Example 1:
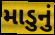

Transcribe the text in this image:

માડુનું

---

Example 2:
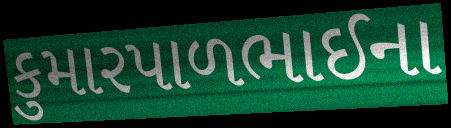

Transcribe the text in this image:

કુમારપાળભાઈના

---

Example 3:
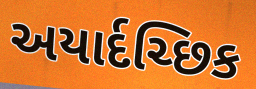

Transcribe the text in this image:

અયાર્દચ્છિક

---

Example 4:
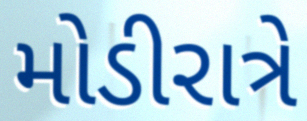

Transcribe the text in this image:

મોડીરાત્રે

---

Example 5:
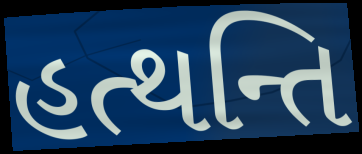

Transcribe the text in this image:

હત્થન્તિ